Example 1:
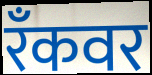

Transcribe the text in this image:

रँकवर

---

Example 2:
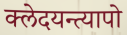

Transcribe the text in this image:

क्लेदयन्त्यापो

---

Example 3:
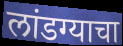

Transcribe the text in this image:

लांडग्याचा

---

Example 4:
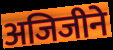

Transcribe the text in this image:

अजिजीने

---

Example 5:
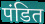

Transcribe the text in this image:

पंडित